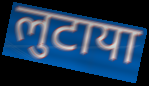
लुटाया